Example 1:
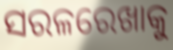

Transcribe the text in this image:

ସରଳରେଖାକୁ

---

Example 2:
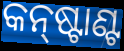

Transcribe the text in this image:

କନ୍‌ଷ୍ଟାଣ୍ଟ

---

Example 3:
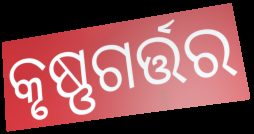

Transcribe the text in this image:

କୃଷ୍ଣଗର୍ତ୍ତର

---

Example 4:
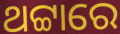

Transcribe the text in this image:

ଥଟ୍ଟାରେ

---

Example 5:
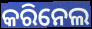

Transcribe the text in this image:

କରିନେଲ